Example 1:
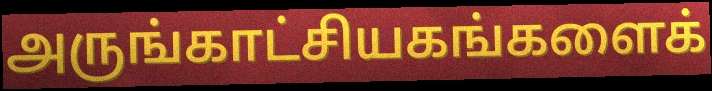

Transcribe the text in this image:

அருங்காட்சியகங்களைக்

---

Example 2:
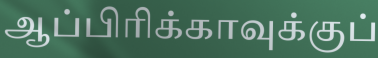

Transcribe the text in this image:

ஆப்பிரிக்காவுக்குப்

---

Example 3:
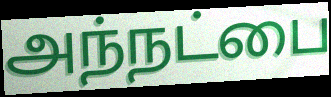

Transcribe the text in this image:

அந்நட்பை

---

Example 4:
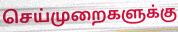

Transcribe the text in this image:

செய்முறைகளுக்கு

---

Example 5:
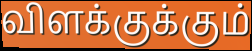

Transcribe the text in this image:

விளக்குக்கும்